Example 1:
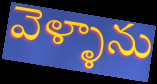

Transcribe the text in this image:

వెళ్ళాను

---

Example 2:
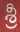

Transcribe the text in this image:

శ్రీ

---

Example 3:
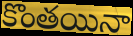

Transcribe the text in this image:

కొంతయినా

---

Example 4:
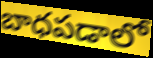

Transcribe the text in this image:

బాధపడాలో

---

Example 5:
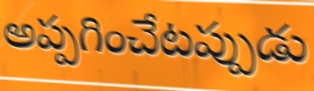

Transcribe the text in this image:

అప్పగించేటప్పుడు